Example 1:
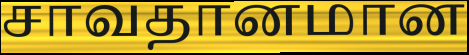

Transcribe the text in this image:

சாவதானமான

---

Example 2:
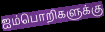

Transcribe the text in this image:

ஐம்பொறிகளுக்கு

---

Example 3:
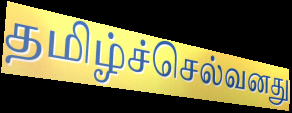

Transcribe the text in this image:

தமிழ்ச்செல்வனது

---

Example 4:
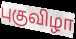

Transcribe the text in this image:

புகுவிழா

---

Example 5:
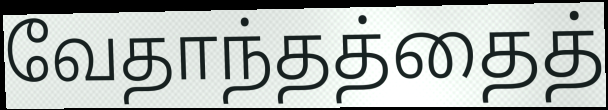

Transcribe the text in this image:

வேதாந்தத்தைத்